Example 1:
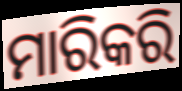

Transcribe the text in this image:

ମାରିକରି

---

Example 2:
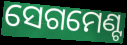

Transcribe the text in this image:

ସେଗମେଣ୍ଟ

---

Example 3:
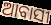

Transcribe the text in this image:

ଆବାସୀ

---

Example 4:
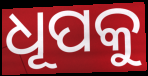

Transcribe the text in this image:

ଧୂପକୁ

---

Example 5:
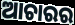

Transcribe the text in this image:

ଆଚାରର